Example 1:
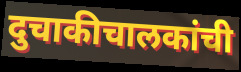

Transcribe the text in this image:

दुचाकीचालकांची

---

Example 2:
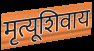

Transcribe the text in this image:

मृत्यूशिवाय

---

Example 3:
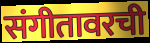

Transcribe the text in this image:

संगीतावरची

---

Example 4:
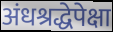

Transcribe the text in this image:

अंधश्रद्धेपेक्षा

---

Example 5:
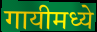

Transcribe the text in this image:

गायीमध्ये